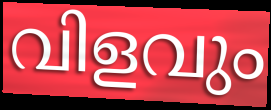
വിളവും